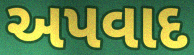
અપવાદ